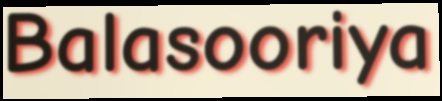
Balasooriya